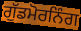
ਗੁੱਡਮੋਰਨਿੰਗ